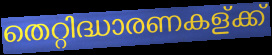
തെറ്റിദ്ധാരണകള്ക്ക്